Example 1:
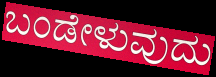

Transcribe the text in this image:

ಬಂಡೇಳುವುದು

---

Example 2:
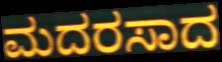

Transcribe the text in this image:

ಮದರಸಾದ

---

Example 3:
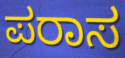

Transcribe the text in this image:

ಪರಾಸ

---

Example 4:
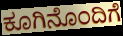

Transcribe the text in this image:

ಕೂಗಿನೊಂದಿಗೆ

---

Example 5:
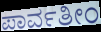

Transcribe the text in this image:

ಪಾರ್ವತೀಂ